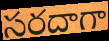
సరదాగా